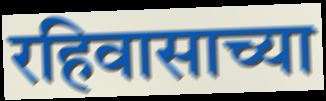
रहिवासाच्या